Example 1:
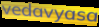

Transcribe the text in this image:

vedavyasa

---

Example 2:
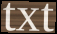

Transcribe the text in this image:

txt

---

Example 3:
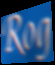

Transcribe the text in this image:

Rog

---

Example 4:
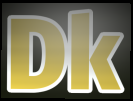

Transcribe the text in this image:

Dk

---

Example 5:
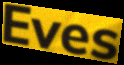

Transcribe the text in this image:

Eves